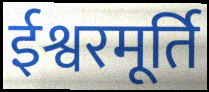
ईश्वरमूर्ति